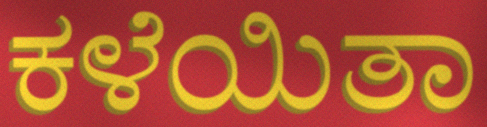
ಕಳೆಯಿತಾ